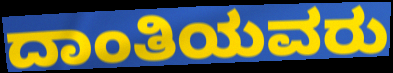
ದಾಂತಿಯವರು